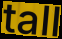
tall